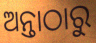
ଅନ୍ତାଠାରୁ